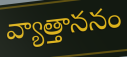
వ్యాత్తాననం